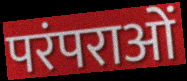
परंपराओं